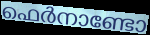
ഫെർനാണ്ടോ